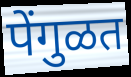
पेंगुळत